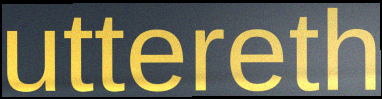
uttereth